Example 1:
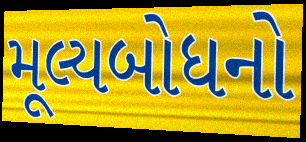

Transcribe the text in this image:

મૂલ્યબોધનો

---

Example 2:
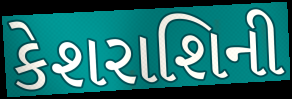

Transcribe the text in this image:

કેશરાશિની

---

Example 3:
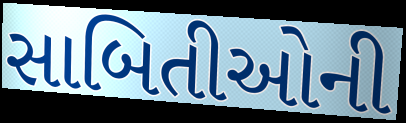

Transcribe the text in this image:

સાબિતીઓની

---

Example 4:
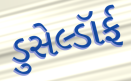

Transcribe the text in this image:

ડુસેલ્ડૉર્ફ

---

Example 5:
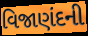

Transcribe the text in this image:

વિજાણંદની